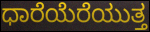
ಧಾರೆಯೆರೆಯುತ್ತ